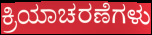
ಕ್ರಿಯಾಚರಣೆಗಳು